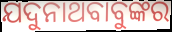
ଯଦୁନାଥବାବୁଙ୍କର